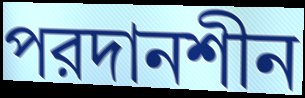
পরদানশীন